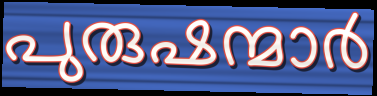
പുരുഷന്മാർ